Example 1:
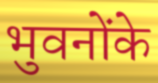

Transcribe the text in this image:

भुवनोंके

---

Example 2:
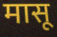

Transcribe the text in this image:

मासू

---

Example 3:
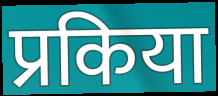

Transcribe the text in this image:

प्रकिया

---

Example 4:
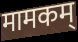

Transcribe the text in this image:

मामकम्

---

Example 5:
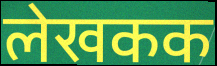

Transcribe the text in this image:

लेखकक